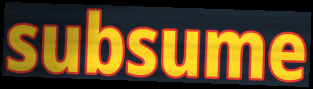
subsume